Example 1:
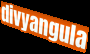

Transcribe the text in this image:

divyangula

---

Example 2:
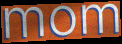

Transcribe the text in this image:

mom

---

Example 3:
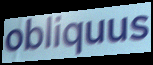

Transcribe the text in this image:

obliquus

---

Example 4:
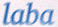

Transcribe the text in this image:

laba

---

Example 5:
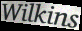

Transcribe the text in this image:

Wilkins